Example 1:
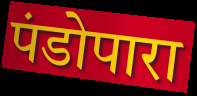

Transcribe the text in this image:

पंडोपारा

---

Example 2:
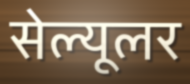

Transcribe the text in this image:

सेल्यूलर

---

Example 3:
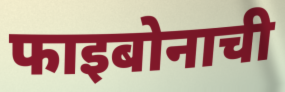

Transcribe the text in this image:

फाइबोनाची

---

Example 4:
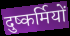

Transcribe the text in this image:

दुष्कर्मियों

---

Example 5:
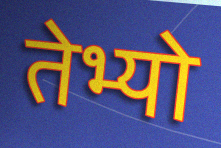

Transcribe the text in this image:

तेभ्यो